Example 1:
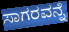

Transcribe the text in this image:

ಸಾಗರವನ್ನೆ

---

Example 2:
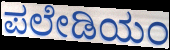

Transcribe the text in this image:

ಪಲೇಡಿಯಂ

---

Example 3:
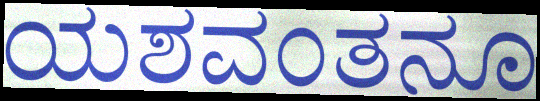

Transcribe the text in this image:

ಯಶವಂತನೂ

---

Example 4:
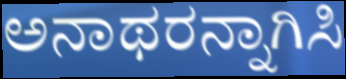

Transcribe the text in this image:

ಅನಾಥರನ್ನಾಗಿಸಿ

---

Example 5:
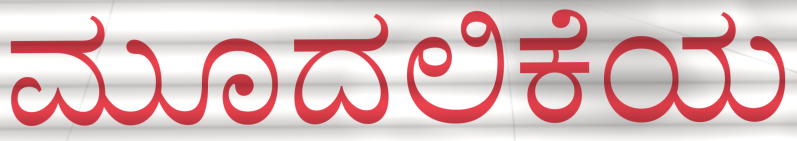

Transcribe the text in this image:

ಮೂದಲಿಕೆಯ